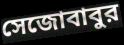
সেজোবাবুর